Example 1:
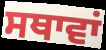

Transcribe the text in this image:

ਸਥਾਵਾਂ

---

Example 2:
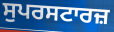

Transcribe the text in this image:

ਸੁਪਰਸਟਾਰਜ਼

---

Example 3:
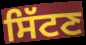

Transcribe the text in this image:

ਸਿੱਟਣ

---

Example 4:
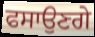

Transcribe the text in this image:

ਫਸਾਉਣਗੇ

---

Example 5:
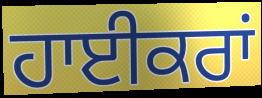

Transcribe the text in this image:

ਹਾਈਕਰਾਂ